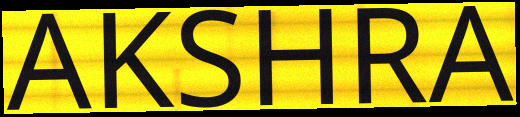
AKSHRA